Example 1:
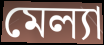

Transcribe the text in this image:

মেল্যা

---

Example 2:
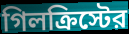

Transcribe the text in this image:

গিলক্রিস্টের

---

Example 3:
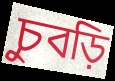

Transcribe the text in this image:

চুবড়ি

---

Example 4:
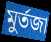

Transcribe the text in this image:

মুর্তজা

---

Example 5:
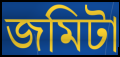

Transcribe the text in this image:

জমিটা